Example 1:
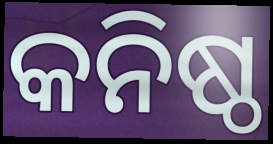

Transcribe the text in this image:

କନିଷ୍ଠ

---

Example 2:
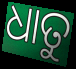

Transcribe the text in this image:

ଧାତୁ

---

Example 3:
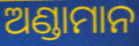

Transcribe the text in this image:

ଅଣ୍ଡାମାନ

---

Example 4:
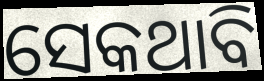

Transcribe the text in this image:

ସେକଥାବି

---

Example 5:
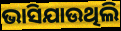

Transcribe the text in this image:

ଭାସିଯାଉଥିଲି